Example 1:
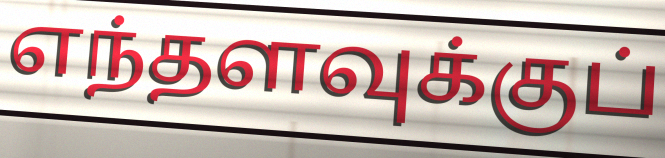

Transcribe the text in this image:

எந்தளவுக்குப்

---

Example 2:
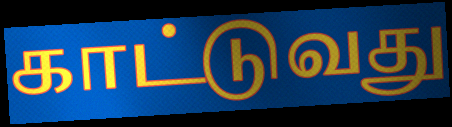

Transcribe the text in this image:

காட்டுவது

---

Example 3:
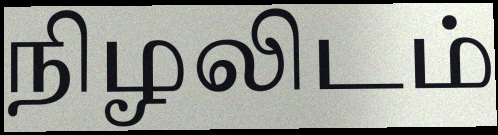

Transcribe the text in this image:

நிழலிடம்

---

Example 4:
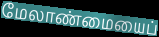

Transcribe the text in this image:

மேலாண்மையைப்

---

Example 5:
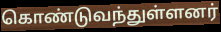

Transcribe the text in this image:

கொண்டுவந்துள்ளனர்